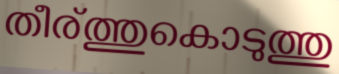
തീര്ത്തുകൊടുത്തു